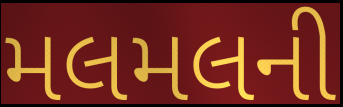
મલમલની